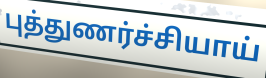
புத்துணர்ச்சியாய்